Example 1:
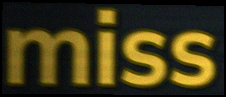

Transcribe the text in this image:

miss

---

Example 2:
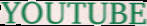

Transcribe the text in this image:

YOUTUBE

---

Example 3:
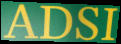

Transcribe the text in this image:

ADSI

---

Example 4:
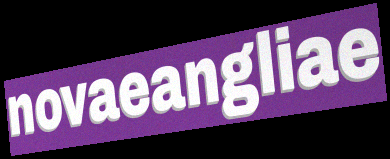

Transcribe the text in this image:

novaeangliae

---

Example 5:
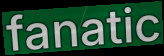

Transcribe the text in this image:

fanatic